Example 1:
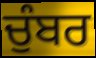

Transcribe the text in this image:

ਚੁੰਬਰ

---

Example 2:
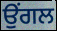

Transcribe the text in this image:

ਉੰਗਲ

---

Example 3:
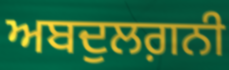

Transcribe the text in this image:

ਅਬਦੁਲਗ਼ਨੀ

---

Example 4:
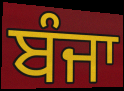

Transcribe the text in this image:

ਬੰਜਾ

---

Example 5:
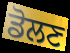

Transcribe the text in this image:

ਡੋਲਣ